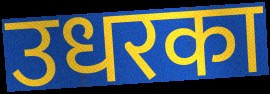
उधरका